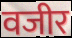
वजीर